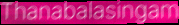
Thanabalasingam